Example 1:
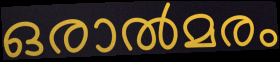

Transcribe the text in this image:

ഒരാൽമരം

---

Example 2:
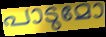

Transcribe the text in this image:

പാടുമോ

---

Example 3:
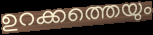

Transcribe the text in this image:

ഉറക്കത്തെയും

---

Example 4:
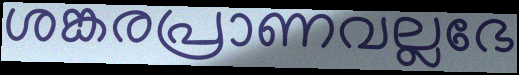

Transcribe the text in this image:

ശങ്കരപ്രാണവല്ലഭേ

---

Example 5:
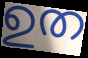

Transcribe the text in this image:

ഉത